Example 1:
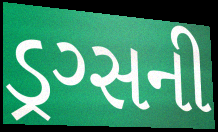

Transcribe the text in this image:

ડ્રગ્સની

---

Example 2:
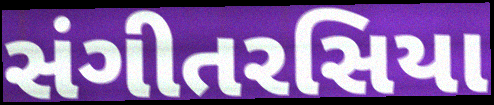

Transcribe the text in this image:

સંગીતરસિયા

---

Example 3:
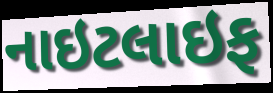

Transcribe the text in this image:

નાઇટલાઇફ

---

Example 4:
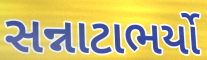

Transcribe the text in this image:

સન્નાટાભર્યો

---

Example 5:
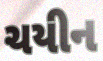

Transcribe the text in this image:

ચયીન